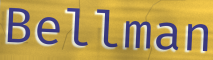
Bellman